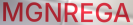
MGNREGA